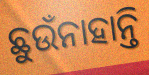
ଛୁଉଁନାହାନ୍ତି